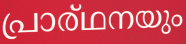
പ്രാര്ഥനയും